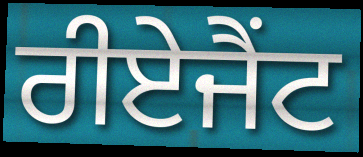
ਰੀਏਜੈਂਟ